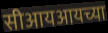
सीआयआयच्या